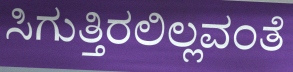
ಸಿಗುತ್ತಿರಲಿಲ್ಲವಂತೆ